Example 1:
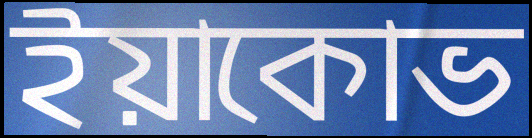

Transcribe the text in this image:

ইয়াকোভ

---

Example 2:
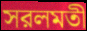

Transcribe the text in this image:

সরলমতী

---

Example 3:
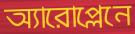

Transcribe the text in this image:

অ্যারোপ্লেনে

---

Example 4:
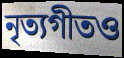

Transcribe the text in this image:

নৃত্যগীতও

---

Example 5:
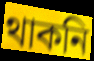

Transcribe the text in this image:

থাকনি